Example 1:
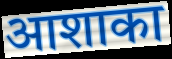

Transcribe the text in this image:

आशाका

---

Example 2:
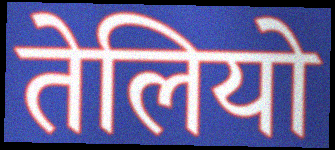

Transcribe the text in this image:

तेलियो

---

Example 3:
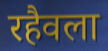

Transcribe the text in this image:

रहैवला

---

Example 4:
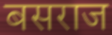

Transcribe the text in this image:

बसराज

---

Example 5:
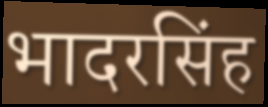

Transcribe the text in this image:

भादरसिंह